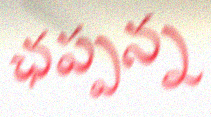
ఛప్పన్న